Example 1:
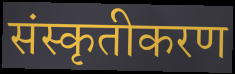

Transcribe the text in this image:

संस्कृतीकरण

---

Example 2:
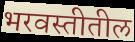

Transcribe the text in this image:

भरवस्तीतील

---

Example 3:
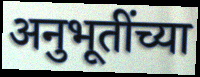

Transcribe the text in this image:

अनुभूतींच्या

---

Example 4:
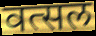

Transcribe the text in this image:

वत्सल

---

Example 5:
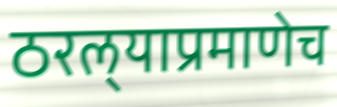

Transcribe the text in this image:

ठरल्याप्रमाणेच